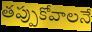
తప్పుకోవాలనే